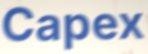
Capex